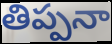
తిప్పనా